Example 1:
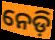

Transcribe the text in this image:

ନେଡ଼ି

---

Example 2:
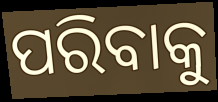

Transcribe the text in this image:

ପରିବାକୁ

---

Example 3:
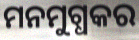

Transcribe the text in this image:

ମନମୁଗ୍ଧକର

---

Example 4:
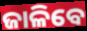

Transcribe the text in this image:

ଜାଳିବେ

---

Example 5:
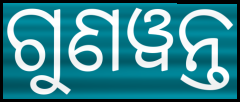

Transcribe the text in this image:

ଗୁଣୱନ୍ତ